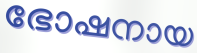
ഭോഷനായ